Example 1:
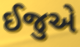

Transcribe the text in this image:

ઈજુએ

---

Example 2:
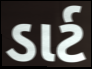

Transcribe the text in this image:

ડાર્ટ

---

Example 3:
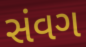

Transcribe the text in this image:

સંવગ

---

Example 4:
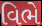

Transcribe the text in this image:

વિભે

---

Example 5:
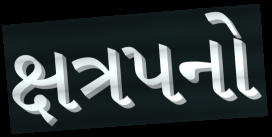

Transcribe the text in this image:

ક્ષત્રપનો